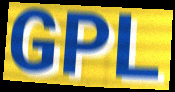
GPL